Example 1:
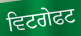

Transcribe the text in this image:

ਵਿਟਗੇਫਟ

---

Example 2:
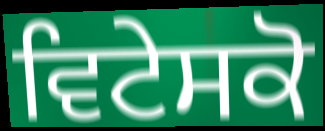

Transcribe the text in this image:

ਵਿਟੇਸਕੋ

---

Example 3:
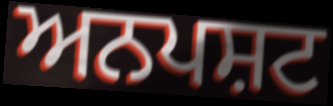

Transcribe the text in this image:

ਅਨਪਸ਼ਟ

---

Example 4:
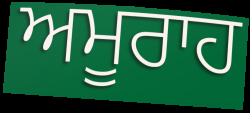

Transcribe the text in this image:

ਅਮੂਰਾਹ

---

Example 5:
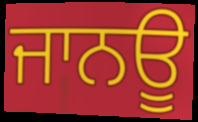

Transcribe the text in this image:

ਜਾਨਊ